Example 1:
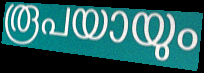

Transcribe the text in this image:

രൂപയായും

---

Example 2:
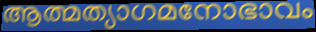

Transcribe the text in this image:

ആത്മത്യാഗമനോഭാവം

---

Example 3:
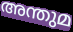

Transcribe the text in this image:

അന്തുമ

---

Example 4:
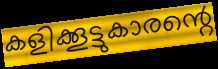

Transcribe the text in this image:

കളിക്കൂട്ടുകാരന്റെ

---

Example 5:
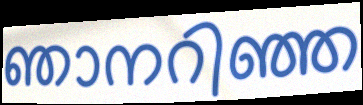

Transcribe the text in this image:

ഞാനറിഞ്ഞ